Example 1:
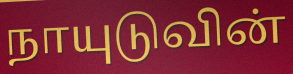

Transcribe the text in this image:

நாயுடுவின்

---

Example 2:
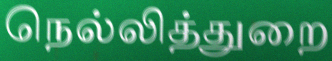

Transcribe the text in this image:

நெல்லித்துறை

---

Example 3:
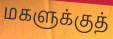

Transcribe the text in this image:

மகளுக்குத்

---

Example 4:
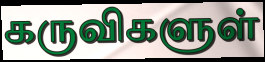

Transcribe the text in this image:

கருவிகளுள்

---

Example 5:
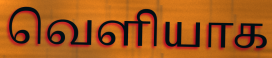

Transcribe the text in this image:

வெளியாக